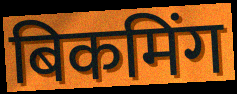
बिकमिंग